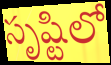
సృష్టిలో